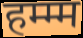
हम्म्म